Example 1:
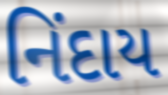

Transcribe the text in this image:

નિંદાય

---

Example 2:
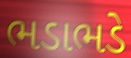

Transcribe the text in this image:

ભડાભડે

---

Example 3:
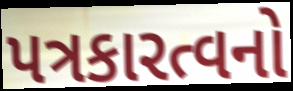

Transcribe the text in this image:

પત્રકારત્વનો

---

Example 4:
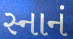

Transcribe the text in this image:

સ્નાનં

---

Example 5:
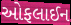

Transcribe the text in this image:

ઓફલાઈન